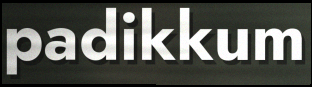
padikkum